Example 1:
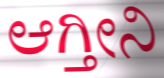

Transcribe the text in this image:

ಆಗ್ತೀನಿ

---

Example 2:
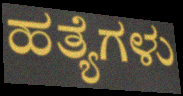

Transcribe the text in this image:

ಹತ್ಯೆಗಳು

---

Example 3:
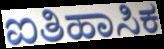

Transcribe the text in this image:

ಐತಿಹಾಸಿಕ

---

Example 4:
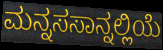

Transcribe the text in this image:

ಮನ್ನಸಸಾನ್ನಲ್ಲಿಯೆ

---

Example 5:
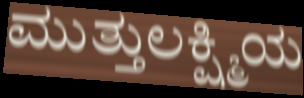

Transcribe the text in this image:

ಮುತ್ತುಲಕ್ಷ್ಮಿಯ